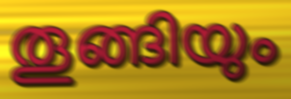
തൂങ്ങിയും